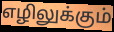
எழிலுக்கும்